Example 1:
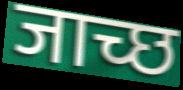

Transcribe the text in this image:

जाच्छ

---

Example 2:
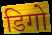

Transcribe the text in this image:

डिगो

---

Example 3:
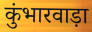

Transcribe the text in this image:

कुंभारवाड़ा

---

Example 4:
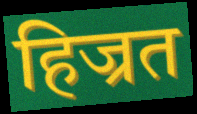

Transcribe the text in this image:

हिज्रत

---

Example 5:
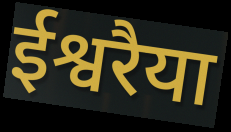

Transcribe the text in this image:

ईश्वरैया